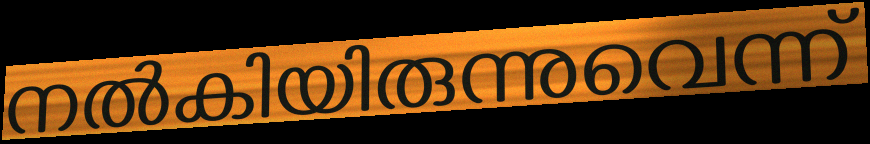
നൽകിയിരുന്നുവെന്ന്